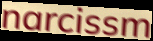
narcissm